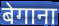
बेगाना